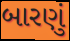
બારણું